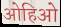
ओहिओ